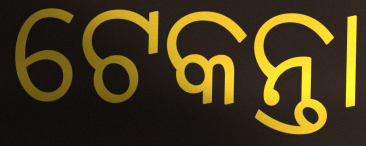
ଟେକନ୍ତା